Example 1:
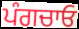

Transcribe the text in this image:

ਪੰਗਚਾਓ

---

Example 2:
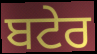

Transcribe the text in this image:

ਬਟੇਰ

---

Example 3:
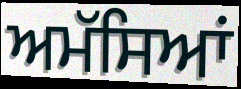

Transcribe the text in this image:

ਅਮੱਸਿਆਂ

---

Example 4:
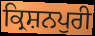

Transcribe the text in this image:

ਕ੍ਰਿਸ਼ਨਪੁਰੀ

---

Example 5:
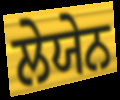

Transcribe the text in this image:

ਲੇਯੇਨ